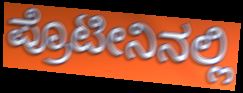
ಪ್ರೊಟೀನಿನಲ್ಲಿ